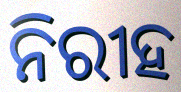
ନିରୀହ